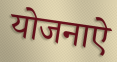
योजनाऐ